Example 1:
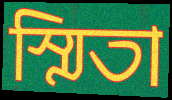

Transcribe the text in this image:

স্মিতা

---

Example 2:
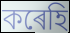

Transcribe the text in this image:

কৰেহি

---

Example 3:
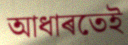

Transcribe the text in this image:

আধাৰতেই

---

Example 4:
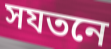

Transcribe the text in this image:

সযতনে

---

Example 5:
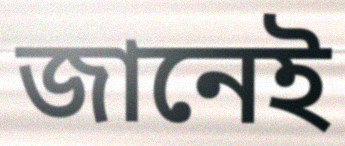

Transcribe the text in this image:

জানেই